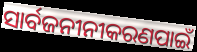
ସାର୍ବଜନୀନୀକରଣପାଇଁ